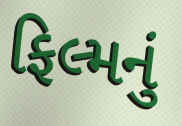
ફિલ્મનું